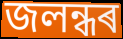
জলন্ধৰ